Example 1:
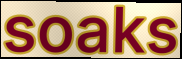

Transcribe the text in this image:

soaks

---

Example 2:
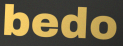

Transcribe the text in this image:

bedo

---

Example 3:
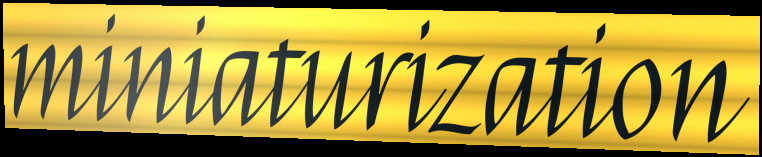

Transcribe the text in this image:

miniaturization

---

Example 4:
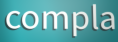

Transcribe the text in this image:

compla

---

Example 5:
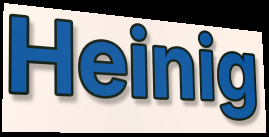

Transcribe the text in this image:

Heinig